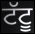
ਟੱਟੂ